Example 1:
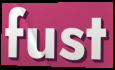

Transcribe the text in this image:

fust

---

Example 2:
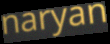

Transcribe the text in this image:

naryan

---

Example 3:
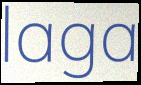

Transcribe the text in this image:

laga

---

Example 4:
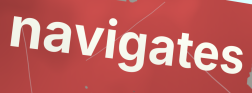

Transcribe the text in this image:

navigates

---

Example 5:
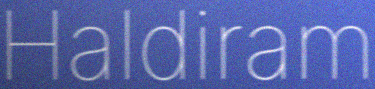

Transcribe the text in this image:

Haldiram